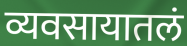
व्यवसायातलं